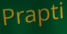
Prapti